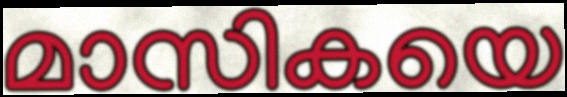
മാസികയെ